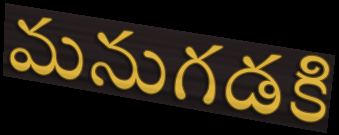
మనుగడకి